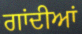
ਗਾਂਦੀਆਂ